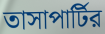
তাসাপার্টির